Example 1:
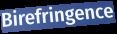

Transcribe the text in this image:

Birefringence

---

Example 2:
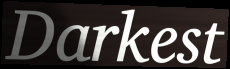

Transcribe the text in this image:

Darkest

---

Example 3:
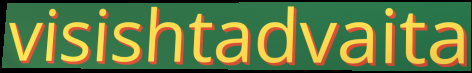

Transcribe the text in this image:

visishtadvaita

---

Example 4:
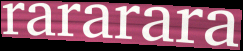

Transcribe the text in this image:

rararara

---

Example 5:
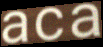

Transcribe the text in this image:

aca